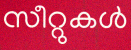
സീറ്റുകൾ